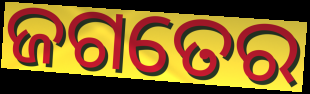
ଜଗତେର